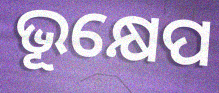
ଭୂକ୍ଷେପ